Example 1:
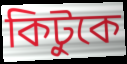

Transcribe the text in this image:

কিটুকে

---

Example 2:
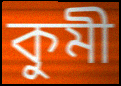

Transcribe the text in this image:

কুমী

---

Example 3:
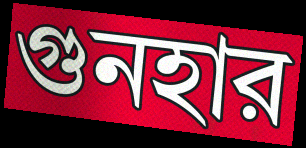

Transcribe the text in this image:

গুনহার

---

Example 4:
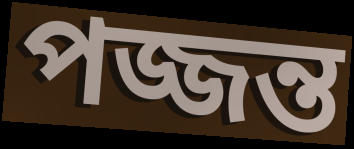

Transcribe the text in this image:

পজ্জন্ত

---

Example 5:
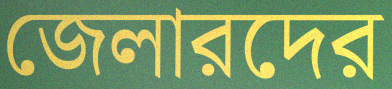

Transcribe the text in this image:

জেলারদের